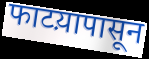
फाटय़ापासून